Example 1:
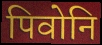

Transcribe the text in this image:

पिवोनि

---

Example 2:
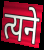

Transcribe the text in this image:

त्यने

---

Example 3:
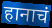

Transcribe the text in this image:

हानाचं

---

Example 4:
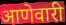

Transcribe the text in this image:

आणेवारी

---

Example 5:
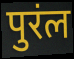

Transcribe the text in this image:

पुरंल